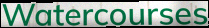
Watercourses